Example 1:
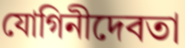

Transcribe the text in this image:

যোগিনীদেবতা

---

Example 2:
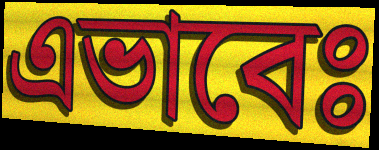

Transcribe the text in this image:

এভাবেঃ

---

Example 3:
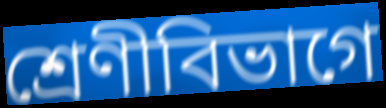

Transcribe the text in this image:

শ্রেণীবিভাগে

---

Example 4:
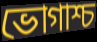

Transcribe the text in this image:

ভোগাশ্চ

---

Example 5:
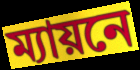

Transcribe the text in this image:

ম্যায়নে